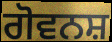
ਗੋਵਨਸ਼